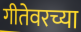
गीतेवरच्या